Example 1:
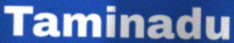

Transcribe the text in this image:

Taminadu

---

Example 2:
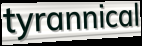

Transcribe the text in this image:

tyrannical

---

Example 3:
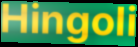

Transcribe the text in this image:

Hingoli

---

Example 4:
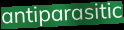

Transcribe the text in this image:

antiparasitic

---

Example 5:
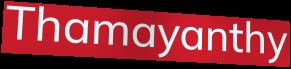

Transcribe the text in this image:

Thamayanthy